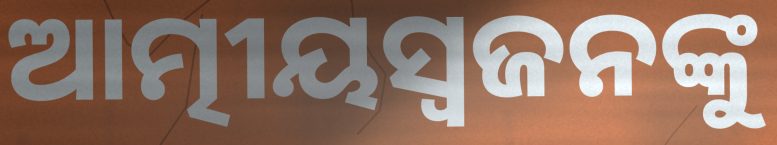
ଆତ୍ମୀୟସ୍ୱଜନଙ୍କୁ